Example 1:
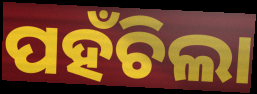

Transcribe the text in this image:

ପହଁଚିଲା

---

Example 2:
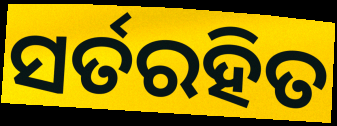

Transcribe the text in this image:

ସର୍ତରହିତ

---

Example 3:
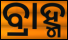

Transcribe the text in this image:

ବ୍ରାହ୍ମ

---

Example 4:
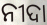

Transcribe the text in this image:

ନୀଦା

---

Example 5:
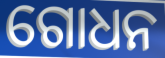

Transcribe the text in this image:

ଗୋଧନ